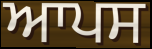
ਆਪਸ